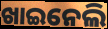
ଖାଇନେଲି